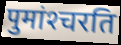
पुमांश्चरति